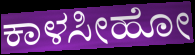
ಕಾಳಸೀಹೋ